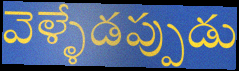
వెళ్ళేడప్పుడు